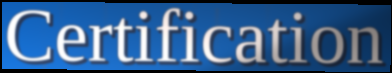
Certification